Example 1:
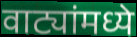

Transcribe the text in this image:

वाट्यांमध्ये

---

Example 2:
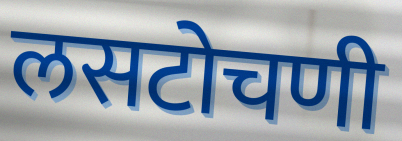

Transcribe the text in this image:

लसटोचणी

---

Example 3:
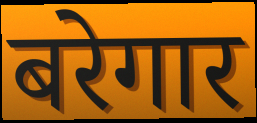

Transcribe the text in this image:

बरेगार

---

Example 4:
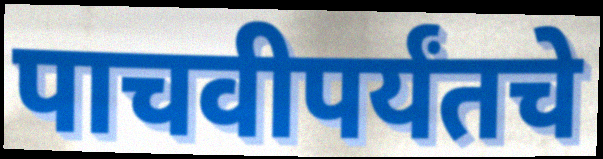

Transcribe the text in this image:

पाचवीपर्यंतचे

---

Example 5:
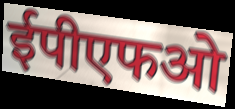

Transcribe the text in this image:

ईपीएफओ